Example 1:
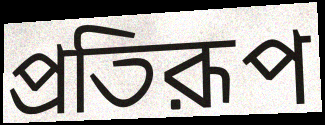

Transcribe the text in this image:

প্রতিরূপ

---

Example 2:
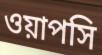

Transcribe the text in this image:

ওয়াপসি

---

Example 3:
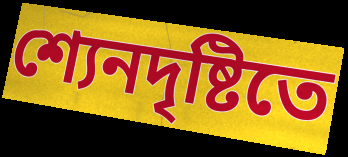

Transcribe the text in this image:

শ্যেনদৃষ্টিতে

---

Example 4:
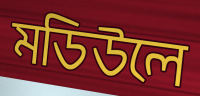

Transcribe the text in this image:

মডিউলে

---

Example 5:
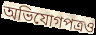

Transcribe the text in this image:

অভিযোগপত্রও